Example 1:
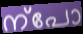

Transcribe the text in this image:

ന്പോ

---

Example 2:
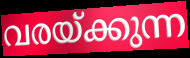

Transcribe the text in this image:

വരയ്ക്കുന്ന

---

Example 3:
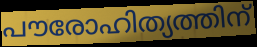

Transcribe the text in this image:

പൗരോഹിത്യത്തിന്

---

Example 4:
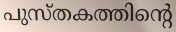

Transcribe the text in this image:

പുസ്തകത്തിന്റെ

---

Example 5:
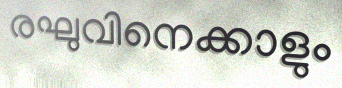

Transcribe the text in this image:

രഘുവിനെക്കാളും